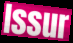
Issur